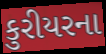
કુરીયરના